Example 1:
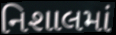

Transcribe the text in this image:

નિશાલમાં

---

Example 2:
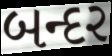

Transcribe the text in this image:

બન્દર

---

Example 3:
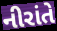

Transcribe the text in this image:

નીરાંતે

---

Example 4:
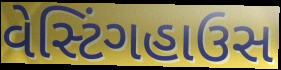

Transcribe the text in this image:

વેસ્ટિંગહાઉસ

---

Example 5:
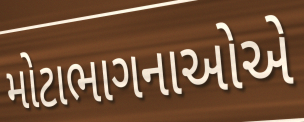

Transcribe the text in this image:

મોટાભાગનાઓએ